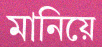
মানিয়ে